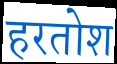
हरतोश